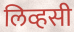
लिव्हसी